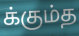
க்கும்த